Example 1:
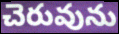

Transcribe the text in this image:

చెరువును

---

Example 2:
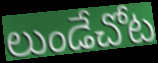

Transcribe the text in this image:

లుండేచోట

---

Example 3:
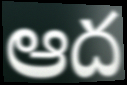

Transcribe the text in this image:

ఆద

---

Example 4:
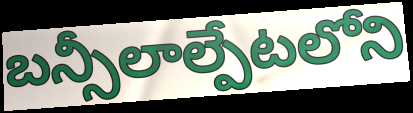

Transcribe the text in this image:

బన్సీలాల్పేటలోని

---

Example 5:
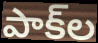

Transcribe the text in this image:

పాక్‌ల